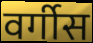
वर्गीस